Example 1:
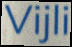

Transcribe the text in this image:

Vijli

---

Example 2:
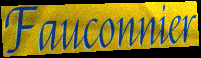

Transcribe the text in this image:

Fauconnier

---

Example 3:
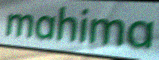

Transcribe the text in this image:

mahima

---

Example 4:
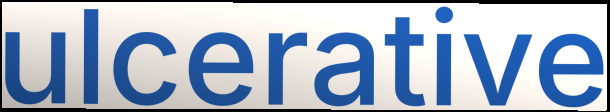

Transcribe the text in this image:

ulcerative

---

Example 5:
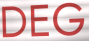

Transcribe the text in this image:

DEG